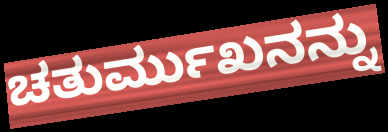
ಚತುರ್ಮುಖನನ್ನು